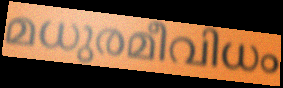
മധുരമീവിധം